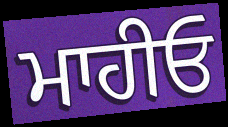
ਮਾਹੀਓ